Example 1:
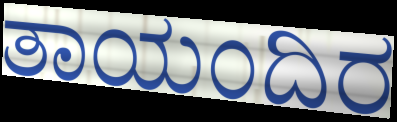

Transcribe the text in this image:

ತಾಯಂದಿರ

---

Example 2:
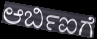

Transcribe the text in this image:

ಆರ್ಬಿಐಗೆ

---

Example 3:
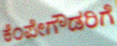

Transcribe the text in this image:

ಕೆಂಪೇಗೌಡರಿಗೆ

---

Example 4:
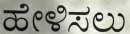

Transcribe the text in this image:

ಹೇಳಿಸಲು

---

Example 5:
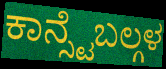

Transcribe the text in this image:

ಕಾನ್ಸ್ಟೆಬಲ್ಗಳ